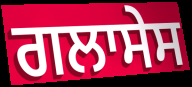
ਗਲਾਸੇਸ